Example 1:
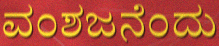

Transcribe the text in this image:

ವಂಶಜನೆಂದು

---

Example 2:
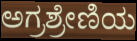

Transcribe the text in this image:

ಅಗ್ರಶ್ರೇಣಿಯ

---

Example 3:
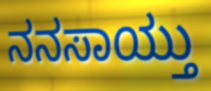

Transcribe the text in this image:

ನನಸಾಯ್ತು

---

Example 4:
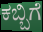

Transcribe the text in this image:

ಕಬ್ಬಿಗೆ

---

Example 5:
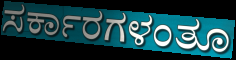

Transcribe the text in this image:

ಸರ್ಕಾರಗಳಂತೂ